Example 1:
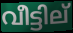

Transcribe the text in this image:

വീട്ടില്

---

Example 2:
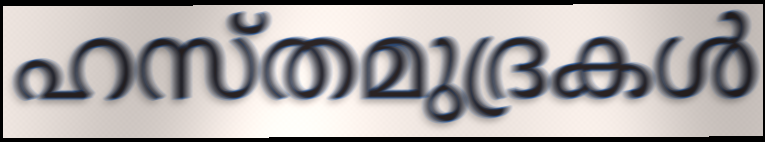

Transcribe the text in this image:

ഹസ്തമുദ്രകൾ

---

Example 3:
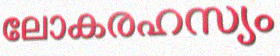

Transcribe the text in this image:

ലോകരഹസ്യം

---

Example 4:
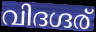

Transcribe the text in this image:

വിദഗ്ദര്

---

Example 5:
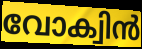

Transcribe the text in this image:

വോക്വിൻ